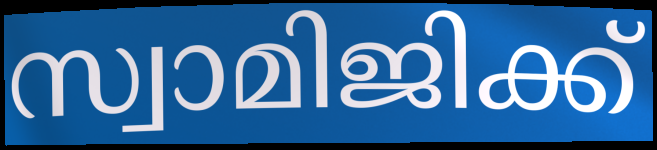
സ്വാമിജിക്ക്